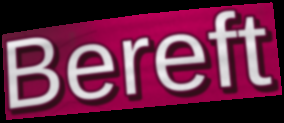
Bereft